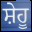
ਸ਼ੇਹੂ